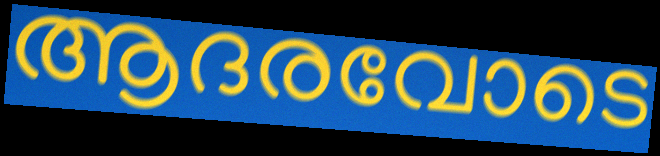
ആദരവോടെ